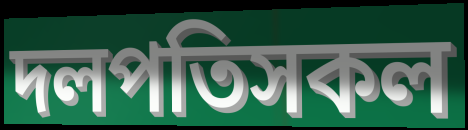
দলপতিসকল